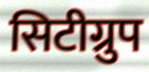
सिटीग्रुप